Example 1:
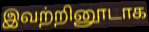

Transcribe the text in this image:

இவற்றினூடாக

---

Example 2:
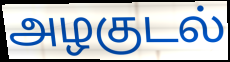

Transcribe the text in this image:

அழகுடல்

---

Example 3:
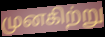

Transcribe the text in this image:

முனகிற்று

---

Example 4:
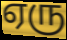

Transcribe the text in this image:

ஏரு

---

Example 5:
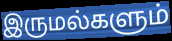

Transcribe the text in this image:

இருமல்களும்